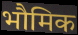
भौमिक